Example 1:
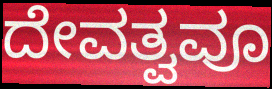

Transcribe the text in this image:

ದೇವತ್ವವೂ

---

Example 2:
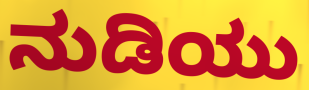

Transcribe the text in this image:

ನುಡಿಯು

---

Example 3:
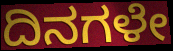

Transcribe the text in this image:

ದಿನಗಳೇ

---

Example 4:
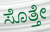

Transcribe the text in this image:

ಸೊತ್ತೇ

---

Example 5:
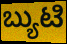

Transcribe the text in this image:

ಬ್ಯುಟಿ